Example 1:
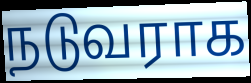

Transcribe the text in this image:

நடுவராக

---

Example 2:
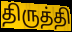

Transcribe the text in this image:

திருத்தி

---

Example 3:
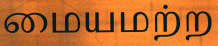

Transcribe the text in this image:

மையமற்ற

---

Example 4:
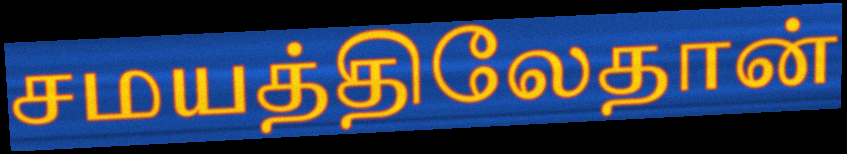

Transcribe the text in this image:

சமயத்திலேதான்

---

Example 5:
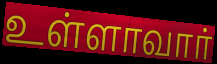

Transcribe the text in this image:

உள்ளாவார்